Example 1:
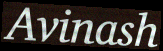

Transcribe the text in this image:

Avinash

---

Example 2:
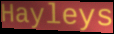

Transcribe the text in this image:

Hayleys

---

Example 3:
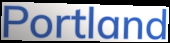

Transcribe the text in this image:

Portland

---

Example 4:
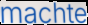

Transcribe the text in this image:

machte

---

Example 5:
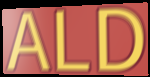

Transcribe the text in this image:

ALD